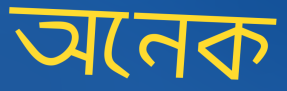
অনেক